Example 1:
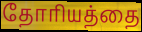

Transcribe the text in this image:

தோரியத்தை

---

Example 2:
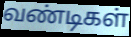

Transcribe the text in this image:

வண்டிகள்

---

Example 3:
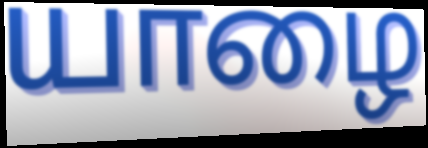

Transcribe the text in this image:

யாழை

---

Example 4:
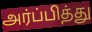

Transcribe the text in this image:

அர்ப்பித்து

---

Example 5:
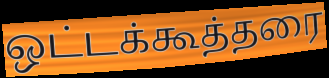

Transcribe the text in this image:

ஒட்டக்கூத்தரை